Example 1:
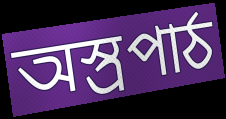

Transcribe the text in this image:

অস্ত্রপাঠ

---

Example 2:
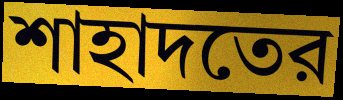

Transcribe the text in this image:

শাহাদতের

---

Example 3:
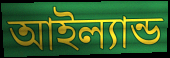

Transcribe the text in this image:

আইল্যান্ড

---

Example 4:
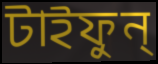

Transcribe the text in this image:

টাইফুন্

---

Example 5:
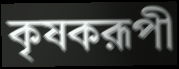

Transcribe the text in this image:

কৃষকরূপী